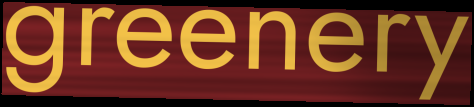
greenery